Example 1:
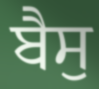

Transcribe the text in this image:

ਬੈਸੁ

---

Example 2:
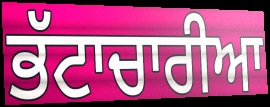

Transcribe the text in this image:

ਭੱਟਾਚਾਰੀਆ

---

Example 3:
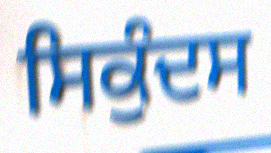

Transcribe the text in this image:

ਸਿਕੁੰਦਸ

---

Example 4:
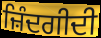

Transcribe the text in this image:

ਜ਼ਿੰਦਗੀਦੀ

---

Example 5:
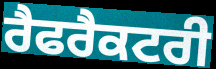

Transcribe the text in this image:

ਰੈਫਰੈਕਟਰੀ